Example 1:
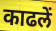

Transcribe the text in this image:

काढलें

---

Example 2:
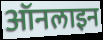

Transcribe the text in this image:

ऑनलाइन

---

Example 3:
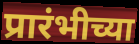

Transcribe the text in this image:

प्रारंभीच्या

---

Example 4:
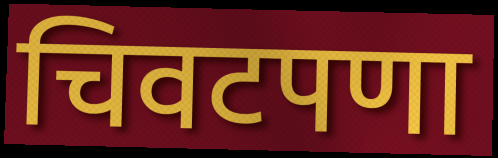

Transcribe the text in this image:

चिवटपणा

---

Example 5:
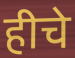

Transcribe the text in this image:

हीचे